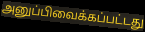
அனுப்பிவைக்கப்பட்டது